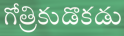
గోత్రికుడొకడు